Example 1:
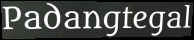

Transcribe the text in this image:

Padangtegal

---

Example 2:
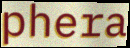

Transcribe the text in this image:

phera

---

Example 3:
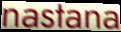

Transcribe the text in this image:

nastana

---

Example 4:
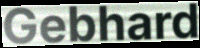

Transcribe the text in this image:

Gebhard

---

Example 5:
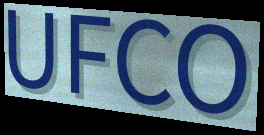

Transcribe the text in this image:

UFCO